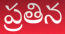
ప్రతిన